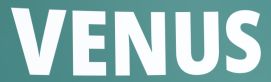
VENUS